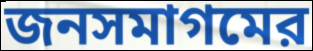
জনসমাগমের